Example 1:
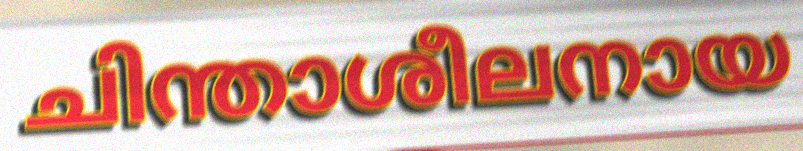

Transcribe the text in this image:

ചിന്താശീലനായ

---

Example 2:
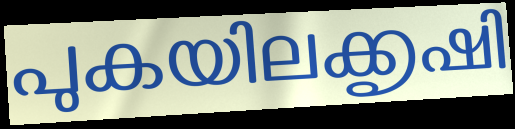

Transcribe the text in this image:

പുകയിലക്കൃഷി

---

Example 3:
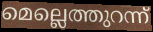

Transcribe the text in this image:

മെല്ലെത്തുറന്ന്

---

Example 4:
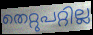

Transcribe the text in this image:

തെറ്റുപറ്റില്ല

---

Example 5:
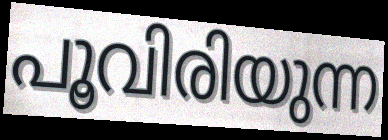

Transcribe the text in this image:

പൂവിരിയുന്ന